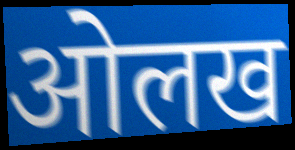
ओलख